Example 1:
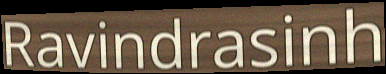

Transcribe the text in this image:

Ravindrasinh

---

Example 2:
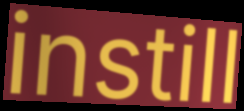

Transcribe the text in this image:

instill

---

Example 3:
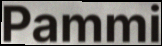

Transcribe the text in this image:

Pammi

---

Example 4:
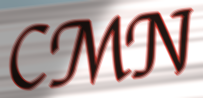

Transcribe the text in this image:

CMN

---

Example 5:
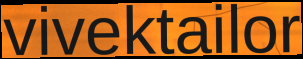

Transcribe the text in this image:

vivektailor